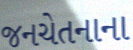
જનચેતનાના